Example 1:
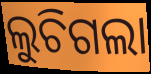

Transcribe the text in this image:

ଲୁଚିଗଲା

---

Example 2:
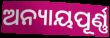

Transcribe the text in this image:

ଅନ୍ୟାୟପୂର୍ଣ୍ଣ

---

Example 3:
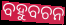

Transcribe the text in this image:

ବହୁବଚନ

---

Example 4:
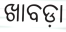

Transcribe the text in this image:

ଖାବଡ଼ା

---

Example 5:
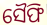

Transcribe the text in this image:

ସୈଫି